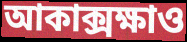
আকাক্সক্ষাও